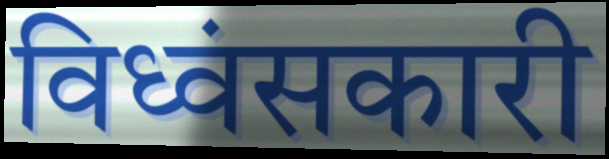
विध्वंसकारी